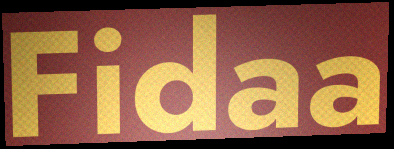
Fidaa